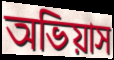
অভিয়াস